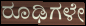
ರೂಢಿಗಳೇ